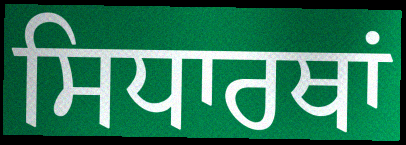
ਸਿਧਾਰਥਾਂ